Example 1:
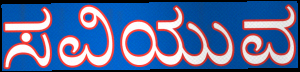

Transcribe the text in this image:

ಸವಿಯುವ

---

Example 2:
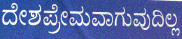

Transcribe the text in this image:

ದೇಶಪ್ರೇಮವಾಗುವುದಿಲ್ಲ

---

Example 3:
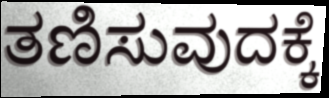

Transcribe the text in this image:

ತಣಿಸುವುದಕ್ಕೆ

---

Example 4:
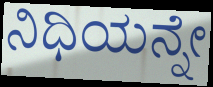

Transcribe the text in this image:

ನಿಧಿಯನ್ನೇ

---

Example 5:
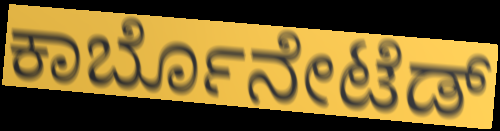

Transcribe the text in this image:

ಕಾರ್ಬೊನೇಟೆಡ್